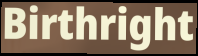
Birthright